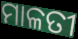
ମାଳତୀ